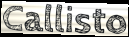
Callisto